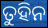
ତୁହିନ